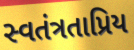
સ્વતંત્રતાપ્રિય